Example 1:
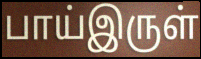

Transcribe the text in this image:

பாய்இருள்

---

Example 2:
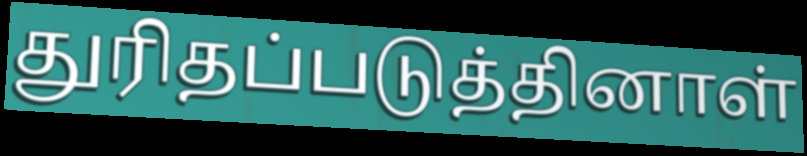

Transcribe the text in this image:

துரிதப்படுத்தினாள்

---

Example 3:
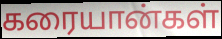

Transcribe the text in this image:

கரையான்கள்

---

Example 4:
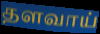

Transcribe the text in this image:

தளவாய்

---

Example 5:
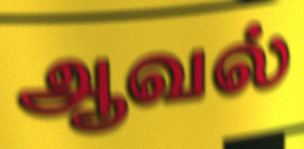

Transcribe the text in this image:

ஆவல்